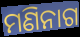
ମଣିନାଗ